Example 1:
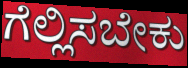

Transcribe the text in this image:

ಗೆಲ್ಲಿಸಬೇಕು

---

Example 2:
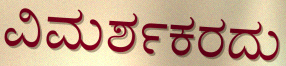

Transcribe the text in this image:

ವಿಮರ್ಶಕರದು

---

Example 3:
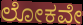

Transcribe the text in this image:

ಲೋಕವೇ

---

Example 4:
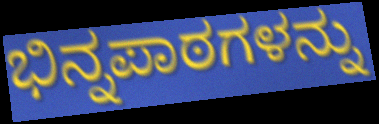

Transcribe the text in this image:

ಭಿನ್ನಪಾಠಗಳನ್ನು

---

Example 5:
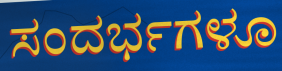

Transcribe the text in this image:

ಸಂದರ್ಭಗಳೂ